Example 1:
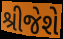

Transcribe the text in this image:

શ્રીજેશે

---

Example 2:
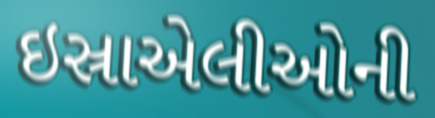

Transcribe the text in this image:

ઇસ્રાએલીઓની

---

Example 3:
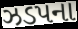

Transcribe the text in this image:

ઝડપના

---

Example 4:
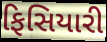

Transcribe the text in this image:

ફિસિયારી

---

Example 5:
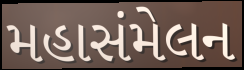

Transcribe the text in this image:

મહાસંમેલન